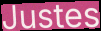
Justes